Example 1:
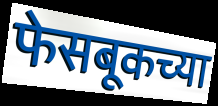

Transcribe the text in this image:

फेसबूकच्या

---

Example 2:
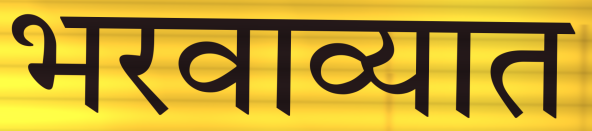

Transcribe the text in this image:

भरवाव्यात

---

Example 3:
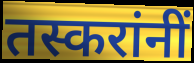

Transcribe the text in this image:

तस्करांनीं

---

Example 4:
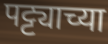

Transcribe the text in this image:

पट्ट्याच्या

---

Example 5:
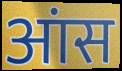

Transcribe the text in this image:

आंस